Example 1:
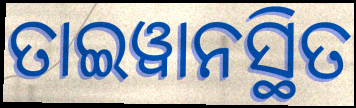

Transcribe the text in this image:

ତାଇୱାନସ୍ଥିତ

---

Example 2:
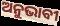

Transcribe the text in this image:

ଅନୁଭାବୀ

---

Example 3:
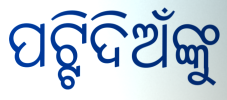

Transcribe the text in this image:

ପଟ୍ଟିଦିଅଁଙ୍କୁ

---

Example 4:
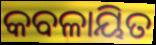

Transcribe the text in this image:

କବଳାୟିତ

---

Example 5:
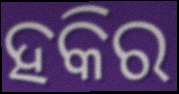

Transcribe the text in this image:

ହକିର